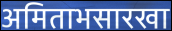
अमिताभसारखा